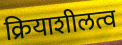
क्रियाशीलत्व